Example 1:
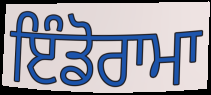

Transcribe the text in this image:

ਇੰਡੋਰਾਮਾ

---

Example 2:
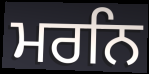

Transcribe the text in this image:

ਮਰਨਿ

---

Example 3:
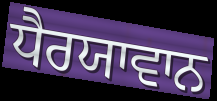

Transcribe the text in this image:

ਧੈਰਯਾਵਾਨ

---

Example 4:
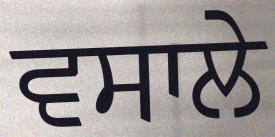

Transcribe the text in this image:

ਵਸਾਲੇ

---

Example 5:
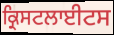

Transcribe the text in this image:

ਕ੍ਰਿਸਟਲਾਈਟਸ